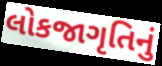
લોકજાગૃતિનું